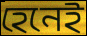
হেনেই